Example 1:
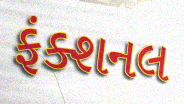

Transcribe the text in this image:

ફંક્શનલ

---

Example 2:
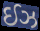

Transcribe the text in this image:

ઈઝ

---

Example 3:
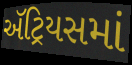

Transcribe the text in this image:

ઍટ્રિયસમાં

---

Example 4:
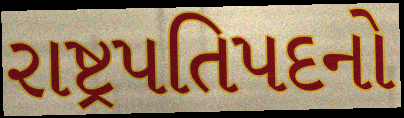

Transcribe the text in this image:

રાષ્ટ્રપતિપદનો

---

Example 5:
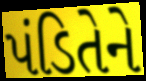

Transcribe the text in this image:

પંડિતેને